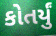
કોતર્યું